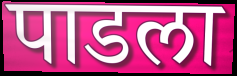
पाडला